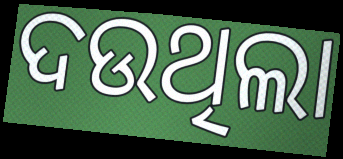
ଦଉଥିଲା